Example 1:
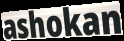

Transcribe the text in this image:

ashokan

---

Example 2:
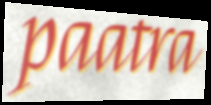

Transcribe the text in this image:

paatra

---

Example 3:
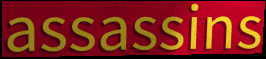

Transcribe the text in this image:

assassins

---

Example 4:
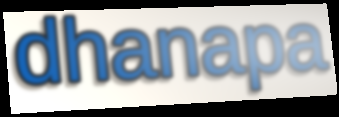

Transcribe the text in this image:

dhanapa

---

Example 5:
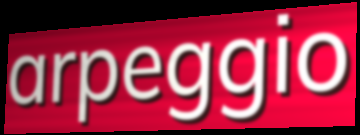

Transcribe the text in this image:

arpeggio